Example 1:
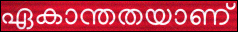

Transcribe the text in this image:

ഏകാന്തതയാണ്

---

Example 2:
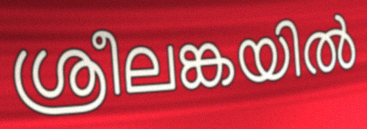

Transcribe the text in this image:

ശ്രീലങ്കയിൽ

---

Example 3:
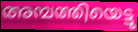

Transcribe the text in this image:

അമ്പത്തിയെട്ടു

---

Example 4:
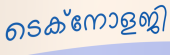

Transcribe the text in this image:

ടെക്നോളജി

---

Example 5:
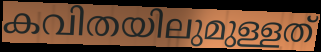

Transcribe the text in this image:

കവിതയിലുമുള്ളത്